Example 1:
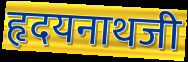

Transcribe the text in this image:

हृदयनाथजी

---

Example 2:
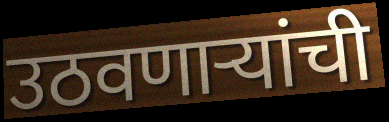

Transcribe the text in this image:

उठवणाऱ्यांची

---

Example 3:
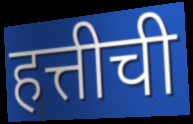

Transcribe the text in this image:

हत्तीची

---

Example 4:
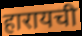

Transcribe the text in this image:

हारायची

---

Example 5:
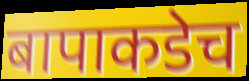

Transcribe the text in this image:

बापाकडेच